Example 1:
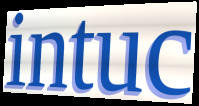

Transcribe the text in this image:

intuc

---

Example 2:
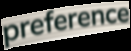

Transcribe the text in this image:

preference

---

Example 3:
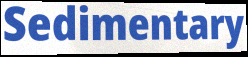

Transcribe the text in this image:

Sedimentary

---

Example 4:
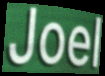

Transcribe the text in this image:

Joel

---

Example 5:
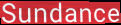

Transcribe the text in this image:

Sundance